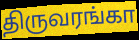
திருவரங்கா